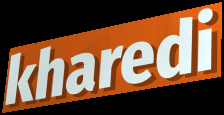
kharedi